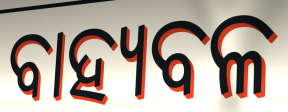
ବାହ୍ୟବଳ